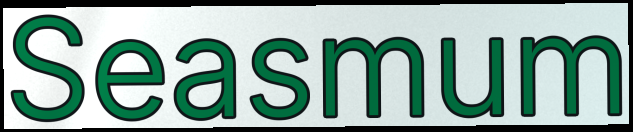
Seasmum